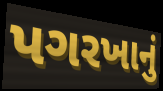
પગરખાનું